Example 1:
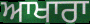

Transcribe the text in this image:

ਆਖਾਰਾ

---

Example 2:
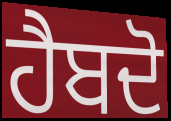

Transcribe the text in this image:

ਹੈਬਦੋ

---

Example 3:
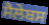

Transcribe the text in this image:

ਸੈਲੇਬਸ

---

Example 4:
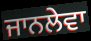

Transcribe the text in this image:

ਜਾਨਲੇਵਾ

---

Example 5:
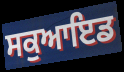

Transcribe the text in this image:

ਸਕੁਆਇਡ